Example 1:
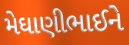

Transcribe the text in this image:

મેઘાણીભાઈને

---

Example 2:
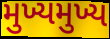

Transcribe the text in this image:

મુખ્યમુખ્ય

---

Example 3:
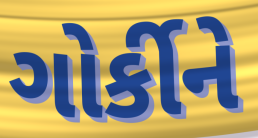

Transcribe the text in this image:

ગોર્કીને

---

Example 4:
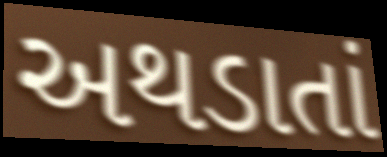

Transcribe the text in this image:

અથડાતાં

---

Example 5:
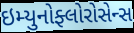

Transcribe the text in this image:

ઇમ્યુનોફ્લોરોસેન્સ